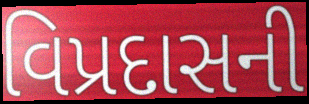
વિપ્રદાસની